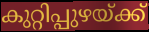
കുറ്റിപ്പുഴയ്ക്ക്